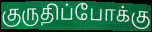
குருதிப்போக்கு